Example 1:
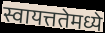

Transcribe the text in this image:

स्वायत्ततेमध्ये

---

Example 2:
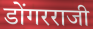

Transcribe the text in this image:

डोंगरराजी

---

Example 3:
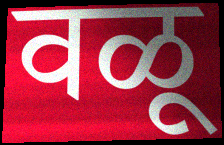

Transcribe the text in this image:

वळू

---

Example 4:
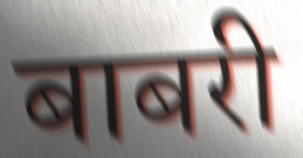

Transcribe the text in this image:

बाबरी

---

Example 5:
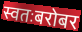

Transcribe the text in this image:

स्वतःबरोबर